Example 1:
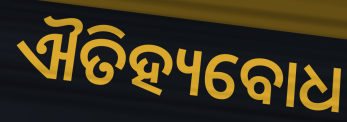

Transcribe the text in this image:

ଐତିହ୍ୟବୋଧ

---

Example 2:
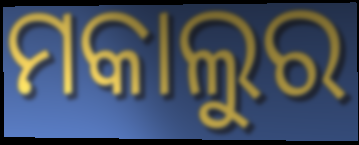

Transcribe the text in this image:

ମକାଲୁର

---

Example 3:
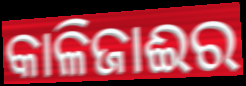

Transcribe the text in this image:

କାଳିଜାଈର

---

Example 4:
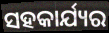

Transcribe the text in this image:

ସହକାର୍ଯ୍ୟର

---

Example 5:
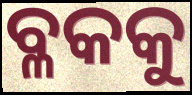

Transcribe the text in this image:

ବ୍ଳକକୁ